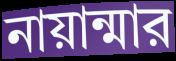
নায়ান্মার